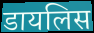
डायलिस